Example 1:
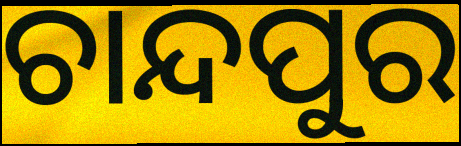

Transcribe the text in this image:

ଚାନ୍ଦପୁର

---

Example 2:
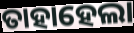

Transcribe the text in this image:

ତାହାହେଲା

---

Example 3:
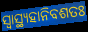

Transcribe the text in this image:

ସ୍ୱାସ୍ଥ୍ୟହାନିବଶତଃ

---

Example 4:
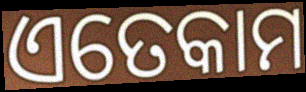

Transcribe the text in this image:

ଏତେକାମ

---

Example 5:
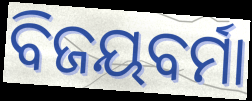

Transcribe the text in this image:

ବିଜୟବର୍ମା